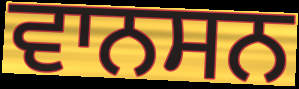
ਵਾਨਸਨ